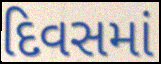
દિવસમાં